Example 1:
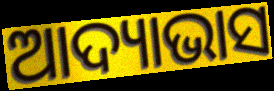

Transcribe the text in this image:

ଆଦ୍ୟାଭାସ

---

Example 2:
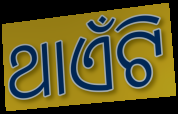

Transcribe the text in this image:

ଥାଏଁଟି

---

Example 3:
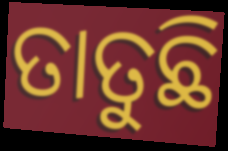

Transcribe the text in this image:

ତାତୁଛି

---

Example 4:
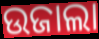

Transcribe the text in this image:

ଉଜାଲା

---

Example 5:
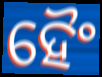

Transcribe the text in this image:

ହୈଂ